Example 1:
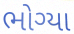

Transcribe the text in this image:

ભોગ્યા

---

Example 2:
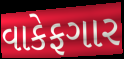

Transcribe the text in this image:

વાકેફગાર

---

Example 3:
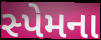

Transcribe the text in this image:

સ્પેમના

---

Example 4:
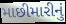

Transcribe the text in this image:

માછીમારીનું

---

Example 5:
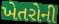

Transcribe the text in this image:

ખેતરોની